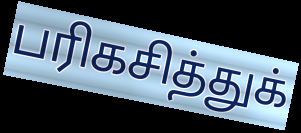
பரிகசித்துக்